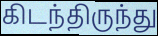
கிடந்திருந்து